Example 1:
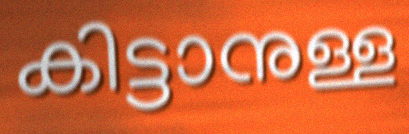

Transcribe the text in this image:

കിട്ടാനുള്ള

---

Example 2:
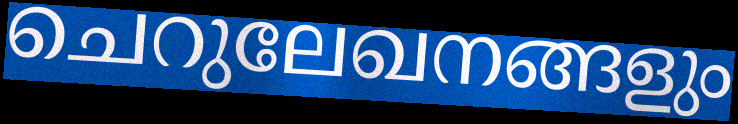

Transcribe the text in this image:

ചെറുലേഖനങ്ങളും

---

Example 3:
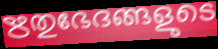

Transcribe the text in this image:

ഋതുഭേദങ്ങളുടെ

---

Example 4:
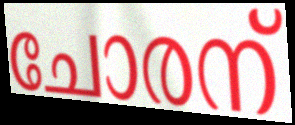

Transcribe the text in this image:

ചോരന്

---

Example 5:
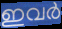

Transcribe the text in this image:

ഇവർ